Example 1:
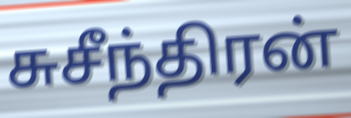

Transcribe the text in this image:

சுசீந்திரன்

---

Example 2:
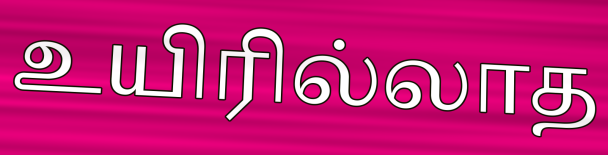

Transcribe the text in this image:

உயிரில்லாத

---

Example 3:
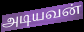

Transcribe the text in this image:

அடியவன்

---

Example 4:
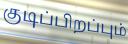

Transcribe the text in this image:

குடிப்பிறப்பும்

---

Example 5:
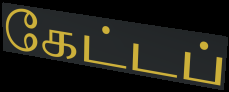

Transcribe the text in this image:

கேட்டப்